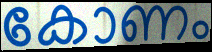
കോണം